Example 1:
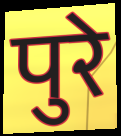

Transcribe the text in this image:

पुरे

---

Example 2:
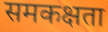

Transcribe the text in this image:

समकक्षता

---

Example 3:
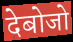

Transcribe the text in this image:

देबोजो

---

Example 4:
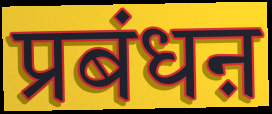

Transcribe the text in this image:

प्रबंधऩ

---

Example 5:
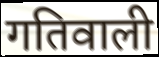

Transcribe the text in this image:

गतिवाली